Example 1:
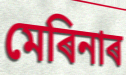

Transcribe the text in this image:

মেৰিনাৰ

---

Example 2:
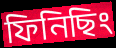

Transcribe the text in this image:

ফিনিছিং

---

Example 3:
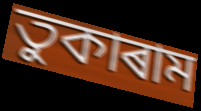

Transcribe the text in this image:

তুকাৰাম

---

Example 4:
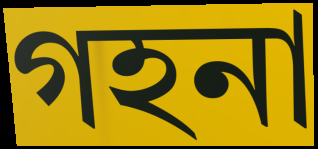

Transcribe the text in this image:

গহনা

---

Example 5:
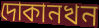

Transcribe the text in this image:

দোকানখন